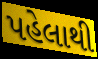
પહેલાથી